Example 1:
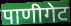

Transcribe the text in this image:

पाणीगेट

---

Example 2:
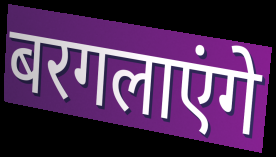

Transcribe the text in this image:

बरगलाएंगे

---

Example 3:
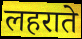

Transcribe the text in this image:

लहराते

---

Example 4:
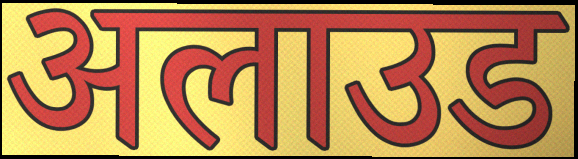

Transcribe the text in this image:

अलाउड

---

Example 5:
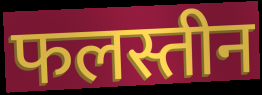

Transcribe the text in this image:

फलस्तीन